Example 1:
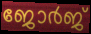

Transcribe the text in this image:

ജോർജ്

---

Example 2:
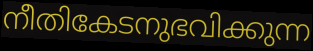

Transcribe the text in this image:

നീതികേടനുഭവിക്കുന്ന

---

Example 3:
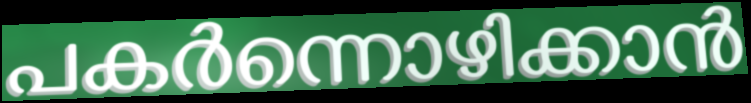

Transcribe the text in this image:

പകർന്നൊഴിക്കാൻ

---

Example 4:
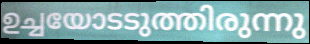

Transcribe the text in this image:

ഉച്ചയോടടുത്തിരുന്നു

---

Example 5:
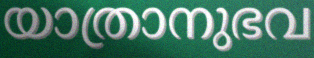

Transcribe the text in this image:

യാത്രാനുഭവ